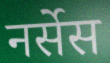
नर्सेस